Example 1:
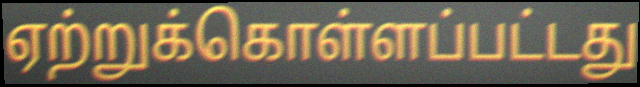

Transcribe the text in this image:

ஏற்றுக்கொள்ளப்பட்டது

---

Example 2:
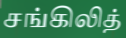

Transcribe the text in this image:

சங்கிலித்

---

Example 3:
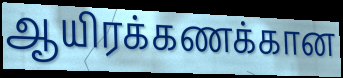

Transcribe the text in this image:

ஆயிரக்கணக்கான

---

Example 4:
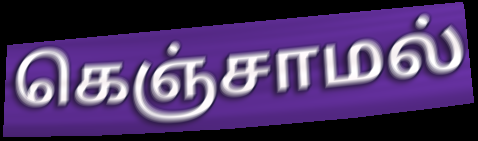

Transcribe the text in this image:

கெஞ்சாமல்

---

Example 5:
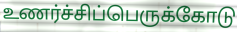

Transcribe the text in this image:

உணர்ச்சிப்பெருக்கோடு